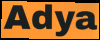
Adya